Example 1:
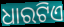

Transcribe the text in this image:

ଧାରଟିଏ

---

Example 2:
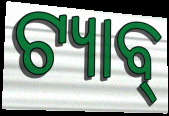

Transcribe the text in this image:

ଟ୍ୟାବ୍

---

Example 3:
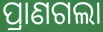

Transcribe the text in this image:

ପ୍ରାଣଗଲା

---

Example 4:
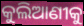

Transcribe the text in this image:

କୁଲିଆଣୀକୁ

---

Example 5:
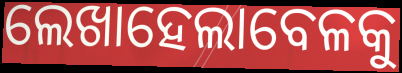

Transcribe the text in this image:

ଲେଖାହେଲାବେଳକୁ